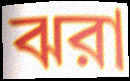
ঝরা